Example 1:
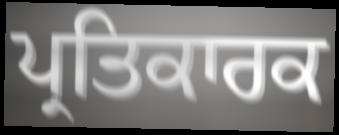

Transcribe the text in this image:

ਪ੍ਰਤਿਕਾਰਕ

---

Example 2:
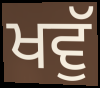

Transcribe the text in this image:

ਖਵੁੱ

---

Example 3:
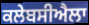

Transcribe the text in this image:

ਕਲੇਬਸੀਐਲਾ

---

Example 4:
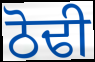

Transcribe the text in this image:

ਠੋਢੀ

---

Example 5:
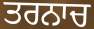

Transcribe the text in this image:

ਤਰਨਾਚ